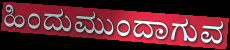
ಹಿಂದುಮುಂದಾಗುವ